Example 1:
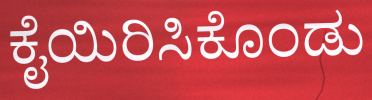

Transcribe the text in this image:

ಕೈಯಿರಿಸಿಕೊಂಡು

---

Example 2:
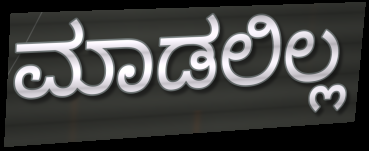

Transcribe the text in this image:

ಮಾಡಲಿಲ್ಲ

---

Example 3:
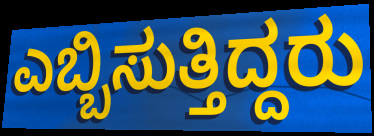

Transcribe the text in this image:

ಎಬ್ಬಿಸುತ್ತಿದ್ದರು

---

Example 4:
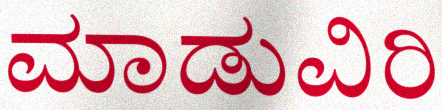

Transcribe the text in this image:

ಮಾಡುವಿರಿ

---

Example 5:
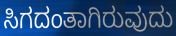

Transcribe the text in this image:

ಸಿಗದಂತಾಗಿರುವುದು